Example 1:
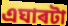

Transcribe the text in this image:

এঘাৰটা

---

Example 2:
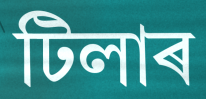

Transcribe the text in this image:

টিলাৰ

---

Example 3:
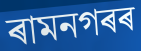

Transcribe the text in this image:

ৰামনগৰৰ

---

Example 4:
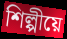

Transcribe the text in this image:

শিল্পীয়ে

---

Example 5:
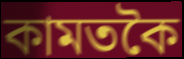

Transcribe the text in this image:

কামতকৈ